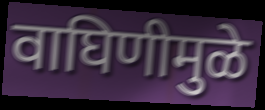
वाघिणीमुळे